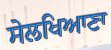
ਸੇਲਖਿਆਣਾ